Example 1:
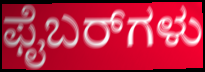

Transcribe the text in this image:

ಫೈಬರ್‌ಗಳು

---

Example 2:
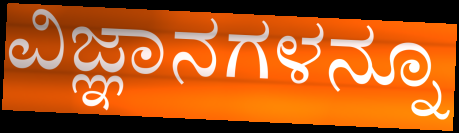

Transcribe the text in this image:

ವಿಜ್ಞಾನಗಳನ್ನೂ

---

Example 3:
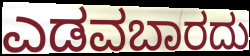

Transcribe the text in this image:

ಎಡವಬಾರದು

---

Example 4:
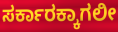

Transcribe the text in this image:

ಸರ್ಕಾರಕ್ಕಾಗಲೀ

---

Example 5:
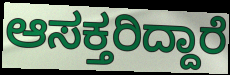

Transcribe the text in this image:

ಆಸಕ್ತರಿದ್ದಾರೆ